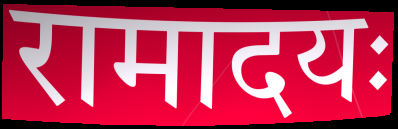
रामादयः